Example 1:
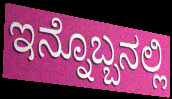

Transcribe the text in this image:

ಇನ್ನೊಬ್ಬನಲ್ಲಿ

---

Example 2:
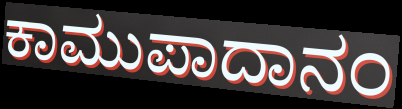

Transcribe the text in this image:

ಕಾಮುಪಾದಾನಂ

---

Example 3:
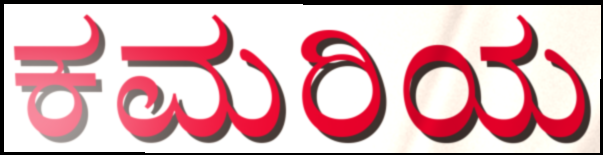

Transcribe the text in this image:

ಕಮರಿಯ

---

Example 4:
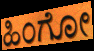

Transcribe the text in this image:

ಹಿಂಗೋ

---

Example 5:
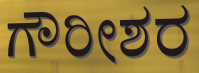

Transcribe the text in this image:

ಗೌರೀಶರ